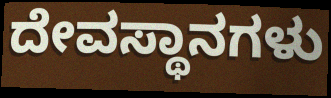
ದೇವಸ್ಥಾನಗಳು